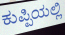
ಕುಪ್ಪಿಯಲ್ಲಿ